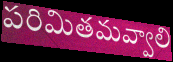
పరిమితమవ్వాలి